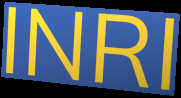
INRI